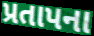
પ્રતાપના